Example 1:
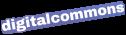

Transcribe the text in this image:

digitalcommons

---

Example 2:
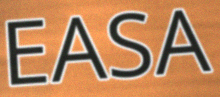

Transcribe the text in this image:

EASA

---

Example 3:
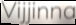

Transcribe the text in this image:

Vijjinna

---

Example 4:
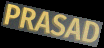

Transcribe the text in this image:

PRASAD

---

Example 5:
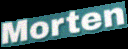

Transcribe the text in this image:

Morten